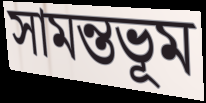
সামন্তভূম